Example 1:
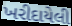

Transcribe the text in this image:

ખરીદાયેલી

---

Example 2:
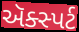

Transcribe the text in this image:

ઍક્સ્પર્ટ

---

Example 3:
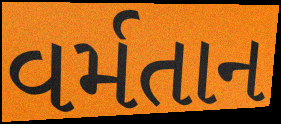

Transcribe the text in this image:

વર્મતાન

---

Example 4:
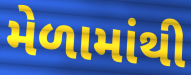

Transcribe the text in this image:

મેળામાંથી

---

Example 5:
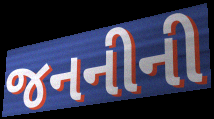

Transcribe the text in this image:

જનનીની